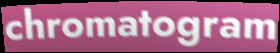
chromatogram